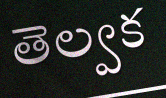
తెల్వక